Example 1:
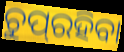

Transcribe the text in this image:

ଚୁପ୍‌ରହିବା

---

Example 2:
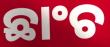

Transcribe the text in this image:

ଛାଂଚ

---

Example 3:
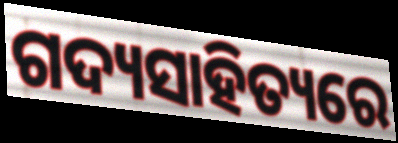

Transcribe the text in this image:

ଗଦ୍ୟସାହିତ୍ୟରେ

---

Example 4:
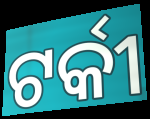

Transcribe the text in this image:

ଟର୍କୀ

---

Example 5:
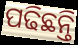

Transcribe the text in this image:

ପଢିଛନ୍ତି